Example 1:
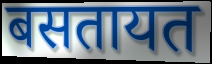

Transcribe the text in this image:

बसतायत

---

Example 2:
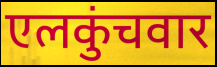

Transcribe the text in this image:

एलकुंचवार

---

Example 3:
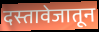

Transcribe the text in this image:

दस्तावेजातून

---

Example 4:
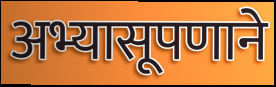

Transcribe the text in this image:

अभ्यासूपणाने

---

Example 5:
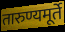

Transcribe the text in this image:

तारुण्यमूर्ते